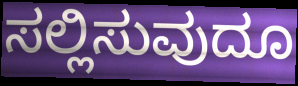
ಸಲ್ಲಿಸುವುದೂ